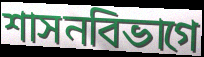
শাসনবিভাগে